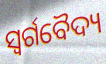
ସ୍ୱର୍ଗବୈଦ୍ୟ